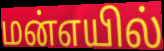
மன்எயில்